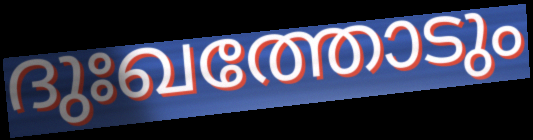
ദുഃഖത്തോടും